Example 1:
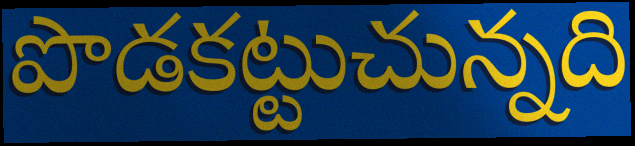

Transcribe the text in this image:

పొడకట్టుచున్నది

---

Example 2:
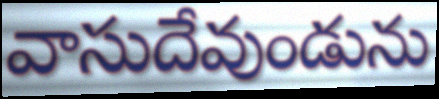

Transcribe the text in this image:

వాసుదేవుండును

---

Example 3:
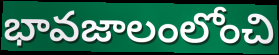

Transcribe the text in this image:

భావజాలంలోంచి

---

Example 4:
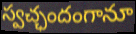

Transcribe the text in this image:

స్వచ్ఛందంగానూ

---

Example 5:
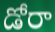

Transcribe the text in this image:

డోరా